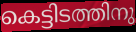
കെട്ടിടത്തിനു